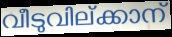
വീടുവില്ക്കാന്